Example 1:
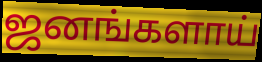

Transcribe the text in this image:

ஜனங்களாய்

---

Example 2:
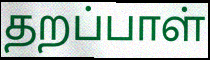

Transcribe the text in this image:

தறப்பாள்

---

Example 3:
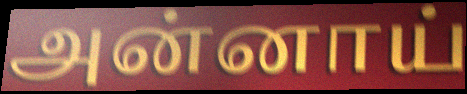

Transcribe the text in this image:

அன்னாய்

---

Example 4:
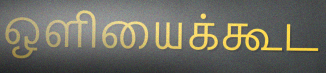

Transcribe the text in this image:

ஒளியைக்கூட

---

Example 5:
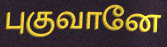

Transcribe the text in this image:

புகுவானே